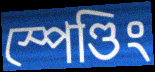
স্পেণ্ডিং